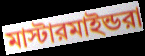
মাস্টারমাইন্ডরা